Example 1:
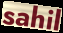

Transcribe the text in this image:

sahil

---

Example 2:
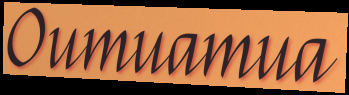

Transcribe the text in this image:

Oumuamua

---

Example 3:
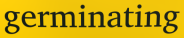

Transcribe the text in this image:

germinating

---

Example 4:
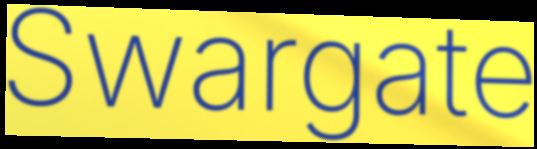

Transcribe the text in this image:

Swargate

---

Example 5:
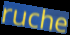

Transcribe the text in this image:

ruche